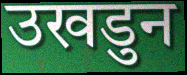
उखडुन